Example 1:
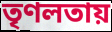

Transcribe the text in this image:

তৃণলতায়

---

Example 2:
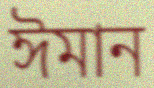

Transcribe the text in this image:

ঈমান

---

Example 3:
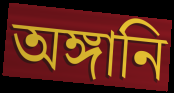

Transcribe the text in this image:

অঙ্গানি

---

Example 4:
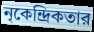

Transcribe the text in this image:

নৃকেন্দ্রিকতার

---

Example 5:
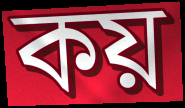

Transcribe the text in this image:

কয়